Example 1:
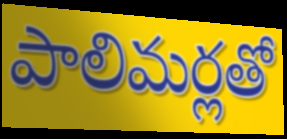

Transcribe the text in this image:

పాలిమర్లతో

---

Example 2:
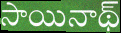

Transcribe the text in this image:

సాయినాథ్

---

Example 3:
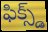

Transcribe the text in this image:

ఫిక్స్డ్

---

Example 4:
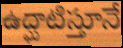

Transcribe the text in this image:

ఉద్ఘాటిస్తూనే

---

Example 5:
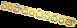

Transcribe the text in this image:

సంపాదించినదంతా